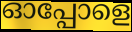
ഓപ്പോളെ